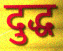
दुद्ध